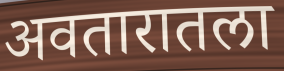
अवतारातला